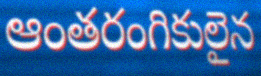
ఆంతరంగికులైన